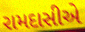
રામદાસીએ